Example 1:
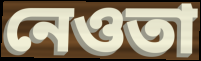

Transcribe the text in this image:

নেওতা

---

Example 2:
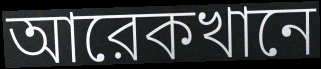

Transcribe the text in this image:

আরেকখানে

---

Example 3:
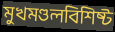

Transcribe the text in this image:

মুখমণ্ডলবিশিষ্ট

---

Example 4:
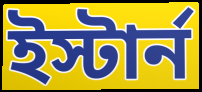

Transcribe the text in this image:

ইস্টার্ন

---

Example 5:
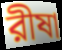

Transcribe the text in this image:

রীষা